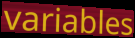
variables